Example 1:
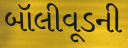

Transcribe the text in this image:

બૉલીવૂડની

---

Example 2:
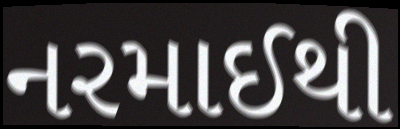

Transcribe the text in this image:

નરમાઈથી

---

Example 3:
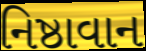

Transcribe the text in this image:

નિષ્ઠાવાન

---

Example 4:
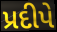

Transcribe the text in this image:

પ્રદીપે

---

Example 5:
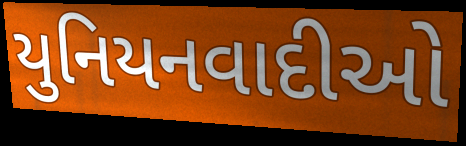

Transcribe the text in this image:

યુનિયનવાદીઓ